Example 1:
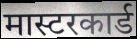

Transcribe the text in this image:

मास्टरकार्ड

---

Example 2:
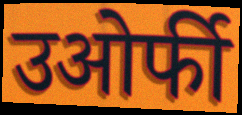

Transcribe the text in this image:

उओर्फी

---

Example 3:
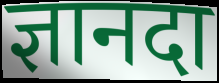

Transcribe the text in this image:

ज्ञानदा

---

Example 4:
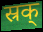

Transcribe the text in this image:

स्रक्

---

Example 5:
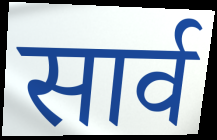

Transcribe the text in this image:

सार्व